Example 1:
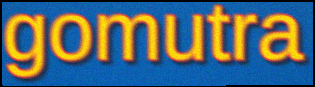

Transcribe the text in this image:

gomutra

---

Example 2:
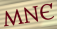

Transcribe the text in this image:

MNE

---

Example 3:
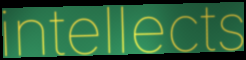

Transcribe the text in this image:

intellects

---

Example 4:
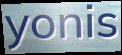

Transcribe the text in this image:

yonis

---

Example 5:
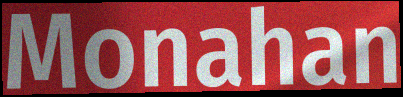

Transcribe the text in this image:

Monahan